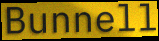
Bunnell